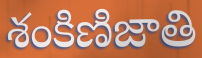
శంకిణిజాతి